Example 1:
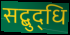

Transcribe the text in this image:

सद्बुद्धि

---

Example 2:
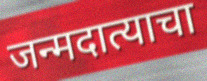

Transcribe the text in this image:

जन्मदात्याचा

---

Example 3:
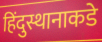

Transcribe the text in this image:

हिंदुस्थानाकडे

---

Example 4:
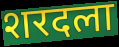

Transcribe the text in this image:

शरदला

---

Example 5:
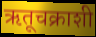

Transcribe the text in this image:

ऋतूचक्राशी